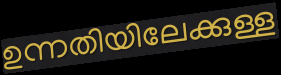
ഉന്നതിയിലേക്കുള്ള